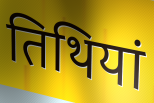
तिथियां